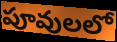
పూవులలో